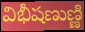
విభీషణుణ్ణి